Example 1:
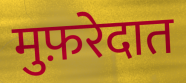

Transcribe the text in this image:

मुफ़रेदात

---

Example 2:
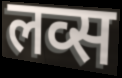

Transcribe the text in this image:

लव्स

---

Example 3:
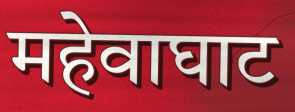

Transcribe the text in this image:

महेवाघाट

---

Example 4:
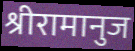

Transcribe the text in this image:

श्रीरामानुज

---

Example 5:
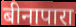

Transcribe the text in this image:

बीनापारा